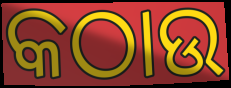
କଠାଉ